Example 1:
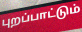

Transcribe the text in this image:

புறப்பாட்டும்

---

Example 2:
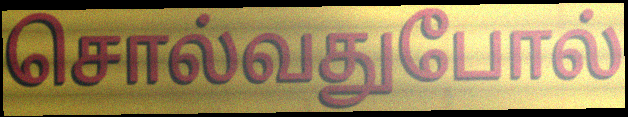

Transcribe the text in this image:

சொல்வதுபோல்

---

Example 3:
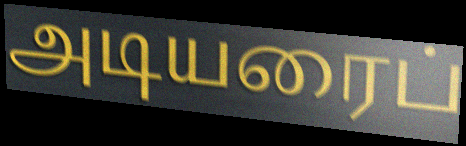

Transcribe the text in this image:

அடியரைப்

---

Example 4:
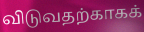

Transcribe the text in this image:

விடுவதற்காகக்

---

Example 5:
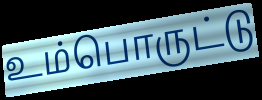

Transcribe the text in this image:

உம்பொருட்டு